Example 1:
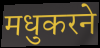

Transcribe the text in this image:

मधुकरने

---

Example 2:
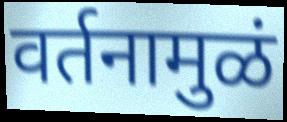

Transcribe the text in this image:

वर्तनामुळं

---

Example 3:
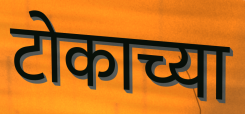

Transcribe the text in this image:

टोकाच्या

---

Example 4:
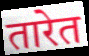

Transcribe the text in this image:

तारेत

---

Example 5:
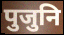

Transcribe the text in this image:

पुजुनि